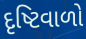
દૃષ્ટિવાળો